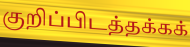
குறிப்பிடத்தக்கக்